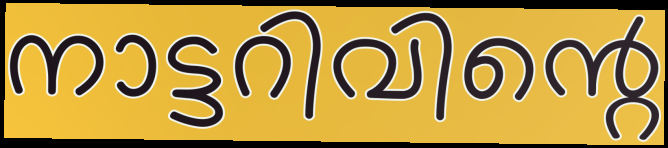
നാട്ടറിവിന്റെ